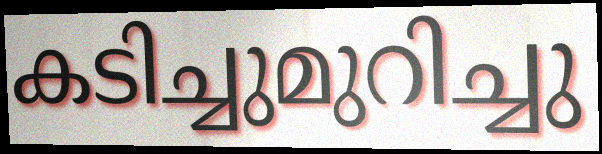
കടിച്ചുമുറിച്ചു